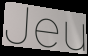
Jeu